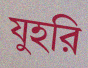
যুহরি